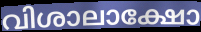
വിശാലാക്ഷോ